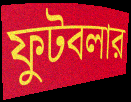
ফুটবলার